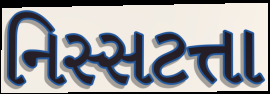
નિસ્સટત્તા